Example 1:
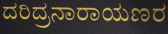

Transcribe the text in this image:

ದರಿದ್ರನಾರಾಯಣರ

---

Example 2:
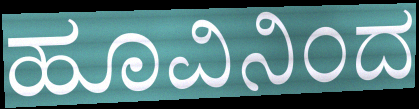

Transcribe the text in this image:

ಹೂವಿನಿಂದ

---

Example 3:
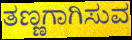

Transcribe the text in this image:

ತಣ್ಣಗಾಗಿಸುವ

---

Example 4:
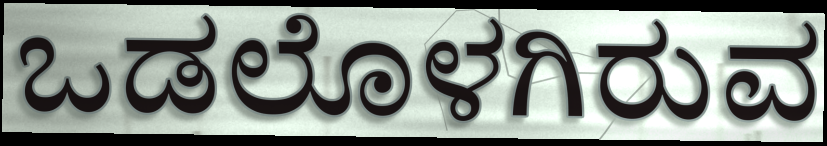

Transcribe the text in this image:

ಒಡಲೊಳಗಿರುವ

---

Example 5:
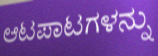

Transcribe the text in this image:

ಆಟಪಾಟಗಳನ್ನು